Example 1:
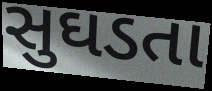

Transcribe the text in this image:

સુઘડતા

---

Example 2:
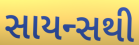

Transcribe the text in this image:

સાયન્સથી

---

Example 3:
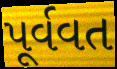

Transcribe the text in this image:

પૂર્વવત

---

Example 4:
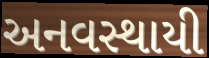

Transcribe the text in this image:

અનવસ્થાયી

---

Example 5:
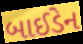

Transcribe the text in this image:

બાઈડેન